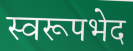
स्वरूपभेद